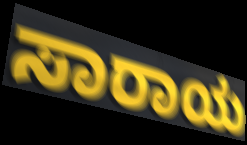
ಸಾರಾಯ